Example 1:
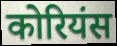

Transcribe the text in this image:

कोरियंस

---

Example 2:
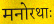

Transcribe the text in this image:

मनोरथाः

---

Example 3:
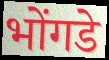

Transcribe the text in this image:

भोंगडे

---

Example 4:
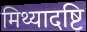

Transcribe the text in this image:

मिथ्यादष्टि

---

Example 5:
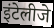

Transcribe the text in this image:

इंटेलीजे